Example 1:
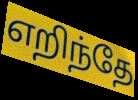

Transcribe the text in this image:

எறிந்தே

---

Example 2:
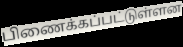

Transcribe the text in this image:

பிணைக்கப்பட்டுள்ளன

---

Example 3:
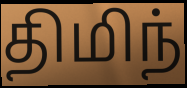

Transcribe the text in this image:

திமிந்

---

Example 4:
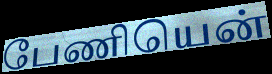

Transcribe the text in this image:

பேணியென்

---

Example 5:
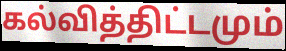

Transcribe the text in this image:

கல்வித்திட்டமும்